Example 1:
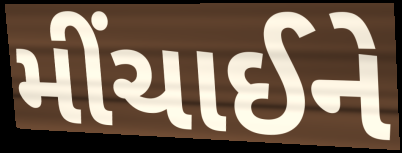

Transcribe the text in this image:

મીંચાઈને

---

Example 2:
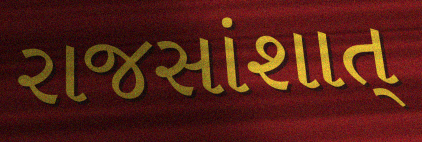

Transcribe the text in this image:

રાજસાંશાત્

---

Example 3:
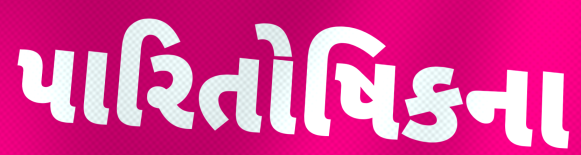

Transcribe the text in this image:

પારિતોષિકના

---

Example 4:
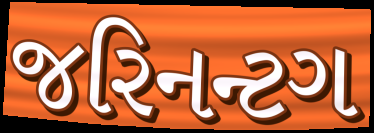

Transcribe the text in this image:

જરિનન્ટગ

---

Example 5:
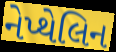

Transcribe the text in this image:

નેપ્થેલિન